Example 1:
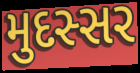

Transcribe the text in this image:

મુદસ્સર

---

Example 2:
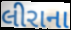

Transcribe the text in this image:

લીરાના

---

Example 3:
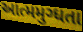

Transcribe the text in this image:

આત્મમુગ્ધતા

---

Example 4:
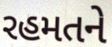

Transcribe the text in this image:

રહમતને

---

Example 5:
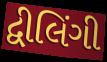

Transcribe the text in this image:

દ્વીલિંગી